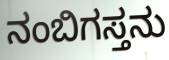
ನಂಬಿಗಸ್ತನು